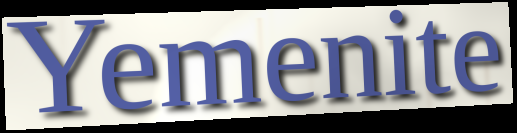
Yemenite